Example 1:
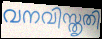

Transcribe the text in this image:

വനവിസ്തൃതി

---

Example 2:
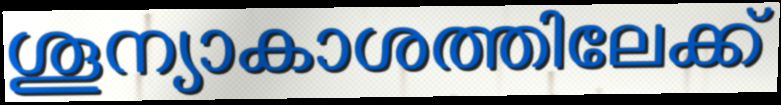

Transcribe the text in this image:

ശൂന്യാകാശത്തിലേക്ക്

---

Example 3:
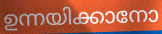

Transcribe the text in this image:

ഉന്നയിക്കാനോ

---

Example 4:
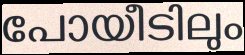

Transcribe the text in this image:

പോയീടിലും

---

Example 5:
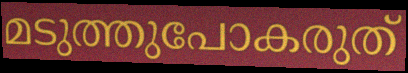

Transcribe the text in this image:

മടുത്തുപോകരുത്